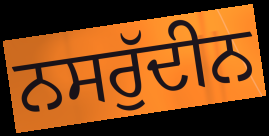
ਨਸਰੁੱਦੀਨ